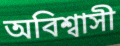
অবিশ্বাসী